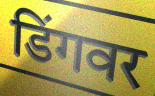
डिंगवर